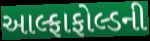
આલ્ફાફોલ્ડની